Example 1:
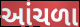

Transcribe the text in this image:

આંચળા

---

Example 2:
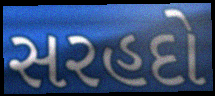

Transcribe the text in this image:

સરહદો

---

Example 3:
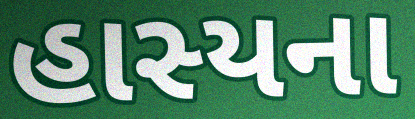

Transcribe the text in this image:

હાસ્યના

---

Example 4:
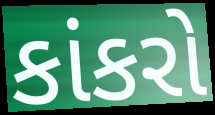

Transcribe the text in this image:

કાંકરો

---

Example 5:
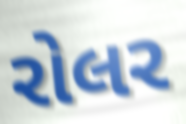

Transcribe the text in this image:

રોલર